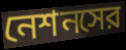
নেশনসের